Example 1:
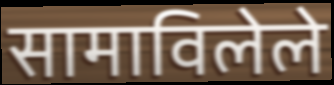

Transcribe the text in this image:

सामाविलेले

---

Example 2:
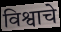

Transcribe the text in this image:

विश्वाचे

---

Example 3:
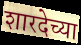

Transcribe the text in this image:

शारदेच्या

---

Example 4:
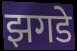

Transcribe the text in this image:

झगडे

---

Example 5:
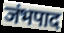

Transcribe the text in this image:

जंभपाद